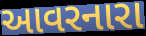
આવરનારા